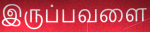
இருப்பவளை